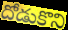
దోడుకొని